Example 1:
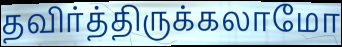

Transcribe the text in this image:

தவிர்த்திருக்கலாமோ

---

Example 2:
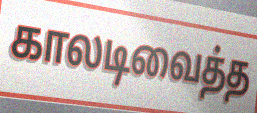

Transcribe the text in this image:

காலடிவைத்த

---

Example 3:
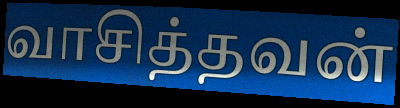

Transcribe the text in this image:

வாசித்தவன்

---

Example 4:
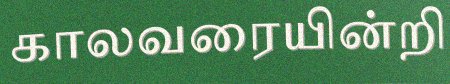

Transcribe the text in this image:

காலவரையின்றி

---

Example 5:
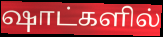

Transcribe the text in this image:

ஷாட்களில்